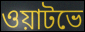
ওয়াটভে